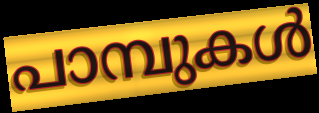
പാമ്പുകൾ